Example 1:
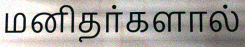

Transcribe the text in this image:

மனிதர்களால்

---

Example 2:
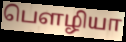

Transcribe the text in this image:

பௌழியா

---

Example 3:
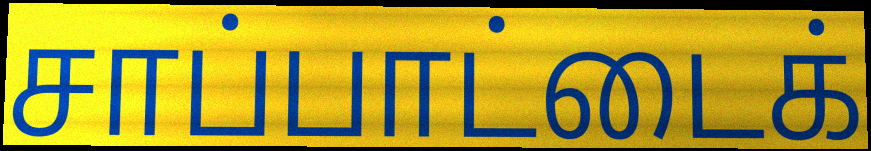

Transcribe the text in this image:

சாப்பாட்டைக்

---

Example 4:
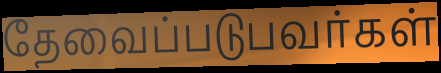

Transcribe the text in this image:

தேவைப்படுபவர்கள்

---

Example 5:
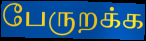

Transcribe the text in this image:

பேருறக்க